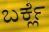
ಬರ್ಕ್ಲೆ